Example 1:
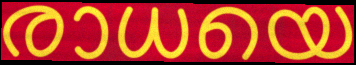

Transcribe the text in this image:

രാധയെ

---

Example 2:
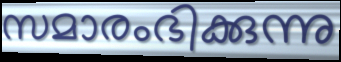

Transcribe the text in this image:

സമാരംഭിക്കുന്നു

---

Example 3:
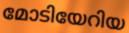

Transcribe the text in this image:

മോടിയേറിയ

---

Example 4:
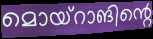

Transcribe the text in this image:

മൊയ്റാങിന്റെ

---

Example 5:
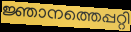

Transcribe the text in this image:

ജ്ഞാനത്തെപ്പറ്റി